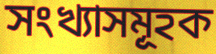
সংখ্যাসমূহক